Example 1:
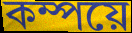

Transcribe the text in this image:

কম্পয়ে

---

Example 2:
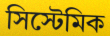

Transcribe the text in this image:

সিস্টেমিক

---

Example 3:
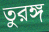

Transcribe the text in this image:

তুরঙ্গ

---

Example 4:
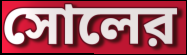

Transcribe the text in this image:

সোলের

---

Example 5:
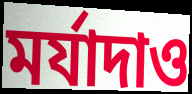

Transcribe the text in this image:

মর্যাদাও